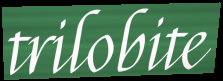
trilobite